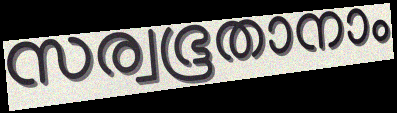
സര്വഭൂതാനാം